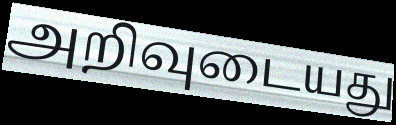
அறிவுடையது